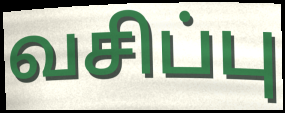
வசிப்பு